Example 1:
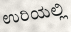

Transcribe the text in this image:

ಉರಿಯಲ್ಲಿ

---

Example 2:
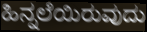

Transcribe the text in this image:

ಹಿನ್ನಲೆಯಿರುವುದು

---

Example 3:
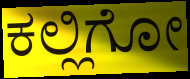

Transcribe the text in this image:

ಕಲ್ಲಿಗೋ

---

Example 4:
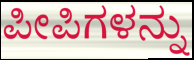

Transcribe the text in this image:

ಪೀಪಿಗಳನ್ನು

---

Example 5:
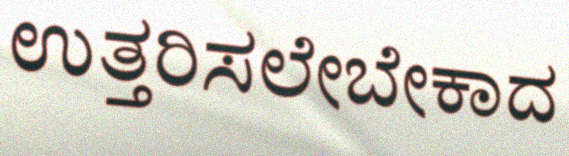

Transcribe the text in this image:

ಉತ್ತರಿಸಲೇಬೇಕಾದ